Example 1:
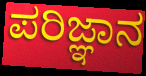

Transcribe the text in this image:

ಪರಿಜ್ಞಾನ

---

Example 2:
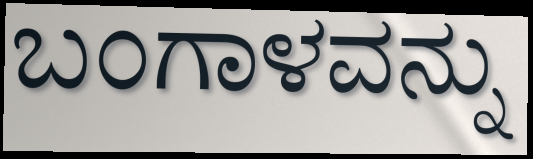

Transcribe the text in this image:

ಬಂಗಾಳವನ್ನು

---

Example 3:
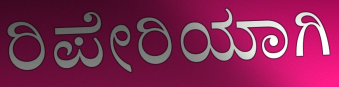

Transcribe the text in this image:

ರಿಪೇರಿಯಾಗಿ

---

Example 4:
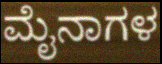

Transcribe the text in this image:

ಮೈನಾಗಳ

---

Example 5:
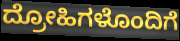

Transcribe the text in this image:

ದ್ರೋಹಿಗಳೊಂದಿಗೆ